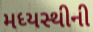
મધ્યસ્થીની